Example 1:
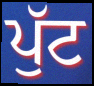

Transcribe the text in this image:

ਪੁੱਟ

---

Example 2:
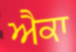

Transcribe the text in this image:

ਐਕਾ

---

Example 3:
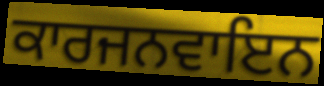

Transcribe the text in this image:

ਕਾਰਜਨਵਾਇਨ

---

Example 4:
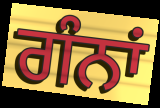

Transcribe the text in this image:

ਗੰਨਾਂ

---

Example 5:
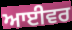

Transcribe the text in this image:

ਆਈਵਰ